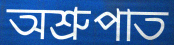
অশ্রুপাত